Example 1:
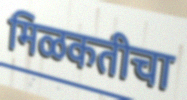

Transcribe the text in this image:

मिळकतीचा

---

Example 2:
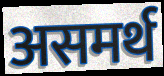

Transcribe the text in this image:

असमर्थ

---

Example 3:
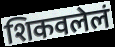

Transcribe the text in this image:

शिकवलेलं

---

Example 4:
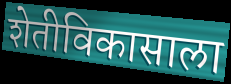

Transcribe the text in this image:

शेतीविकासाला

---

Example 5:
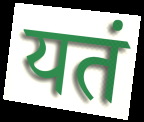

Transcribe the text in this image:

यतं